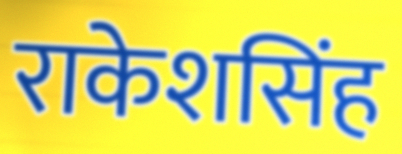
राकेशसिंह